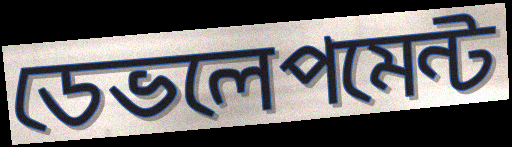
ডেভলেপমেন্ট